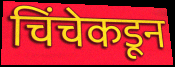
चिंचेकडून